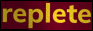
replete